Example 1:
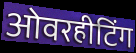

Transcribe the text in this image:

ओवरहीटिंग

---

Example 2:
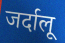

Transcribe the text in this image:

जर्दालू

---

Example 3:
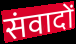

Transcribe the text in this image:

संवादों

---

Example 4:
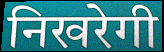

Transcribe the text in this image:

निखरेगी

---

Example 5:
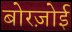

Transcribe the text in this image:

बोरज़ोई